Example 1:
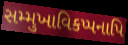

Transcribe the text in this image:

સમ્મુખાવિકપ્પનાપિ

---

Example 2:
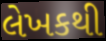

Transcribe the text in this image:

લેખકથી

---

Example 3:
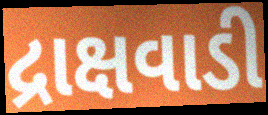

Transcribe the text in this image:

દ્રાક્ષવાડી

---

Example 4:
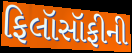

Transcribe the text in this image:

ફિલૉસૉફીની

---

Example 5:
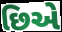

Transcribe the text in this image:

છિએ